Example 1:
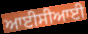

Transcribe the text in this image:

ਆਈਸੀਆਈ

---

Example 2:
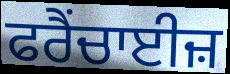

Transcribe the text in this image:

ਫਰੈਂਚਾਈਜ਼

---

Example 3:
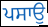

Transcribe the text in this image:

ਪਸਾਉ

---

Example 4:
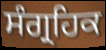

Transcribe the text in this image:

ਸੰਗ੍ਰਹਿਕ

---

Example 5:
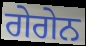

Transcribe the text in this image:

ਗੇਗੇਨ